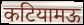
कटियामऊ